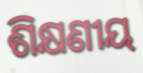
ଶିକ୍ଷଣୀୟ